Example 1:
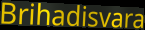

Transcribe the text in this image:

Brihadisvara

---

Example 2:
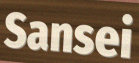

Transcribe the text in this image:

Sansei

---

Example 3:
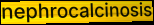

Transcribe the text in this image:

nephrocalcinosis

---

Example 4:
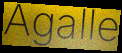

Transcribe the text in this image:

Agalle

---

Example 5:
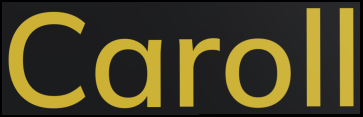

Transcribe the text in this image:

Caroll